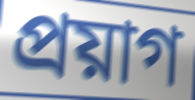
প্রয়াগ